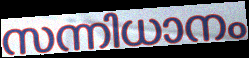
സന്നിധാനം